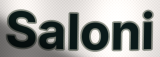
Saloni